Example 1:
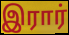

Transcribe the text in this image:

இரார்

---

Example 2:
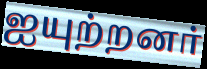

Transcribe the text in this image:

ஐயுற்றனர்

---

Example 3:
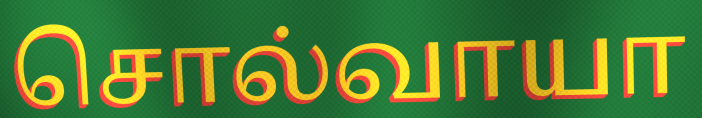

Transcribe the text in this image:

சொல்வாயா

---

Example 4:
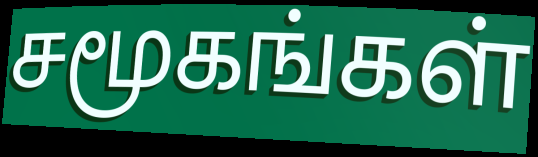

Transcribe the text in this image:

சமூகங்கள்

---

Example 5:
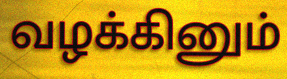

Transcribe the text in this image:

வழக்கினும்